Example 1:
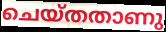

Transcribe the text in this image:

ചെയ്തതാണു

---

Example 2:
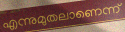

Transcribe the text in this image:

എന്നുമുതലാണെന്ന്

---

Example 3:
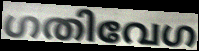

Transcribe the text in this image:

ഗതിവേഗ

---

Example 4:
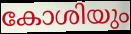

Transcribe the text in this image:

കോശിയും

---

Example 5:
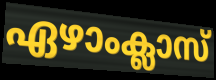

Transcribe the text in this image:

ഏഴാംക്ലാസ്